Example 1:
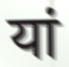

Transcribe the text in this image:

यां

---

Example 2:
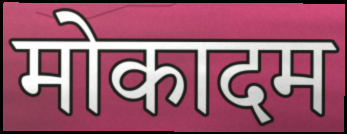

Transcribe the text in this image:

मोकादम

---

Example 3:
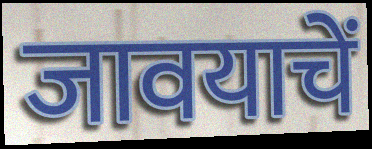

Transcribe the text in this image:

जावयाचें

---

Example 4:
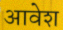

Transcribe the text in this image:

आवेश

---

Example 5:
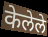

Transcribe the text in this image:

केलेले